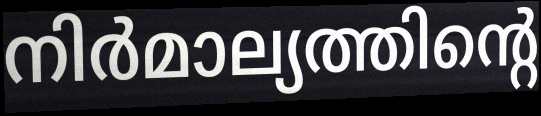
നിർമാല്യത്തിന്റെ